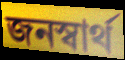
জনস্বার্থ